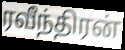
ரவீந்திரன்